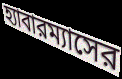
হ্যাবারম্যাসের